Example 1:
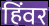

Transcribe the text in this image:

हिंवर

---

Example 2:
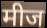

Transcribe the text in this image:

मीज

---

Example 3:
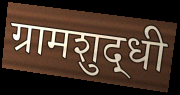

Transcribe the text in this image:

ग्रामशुद्धी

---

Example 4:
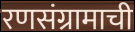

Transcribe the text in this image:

रणसंग्रामाची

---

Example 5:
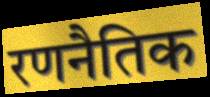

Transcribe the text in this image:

रणनैतिक